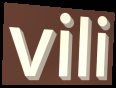
vili